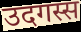
उदगस्स